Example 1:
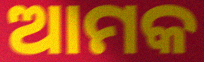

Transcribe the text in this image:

ଆମକ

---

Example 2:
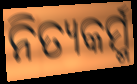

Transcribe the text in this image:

ନିତ୍ୟକର୍ମ୍ମ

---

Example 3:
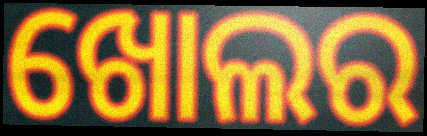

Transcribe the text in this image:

ଖୋଲର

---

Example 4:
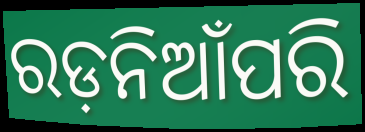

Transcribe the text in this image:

ରଡ଼ନିଆଁପରି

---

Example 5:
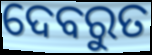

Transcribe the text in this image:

ଦେବରୁତ